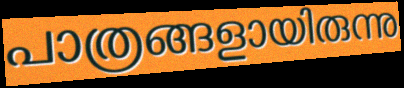
പാത്രങ്ങളായിരുന്നു